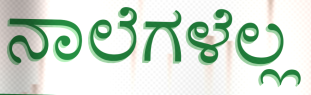
ನಾಲೆಗಳೆಲ್ಲ